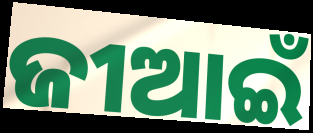
ଜୀଆଇଁ